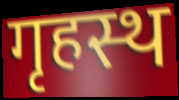
गृहस्थ